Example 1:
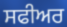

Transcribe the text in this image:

ਸਫੀਅਰ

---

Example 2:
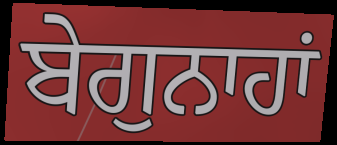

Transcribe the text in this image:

ਬੇਗੁਨਾਹਾਂ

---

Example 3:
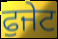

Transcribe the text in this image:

ਫੁਜੇਟ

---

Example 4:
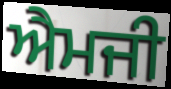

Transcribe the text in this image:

ਐਮਜੀ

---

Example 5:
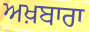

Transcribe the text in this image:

ਅਖ਼ਬਾਰਾ